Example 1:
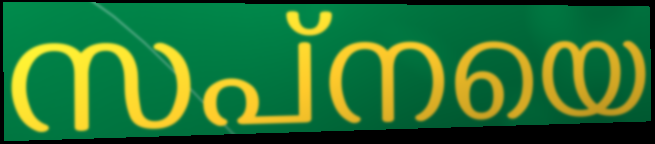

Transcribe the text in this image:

സപ്‌നയെ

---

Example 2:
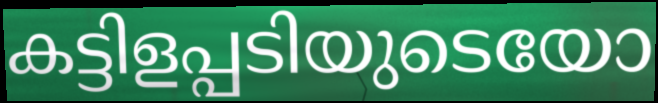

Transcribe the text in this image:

കട്ടിളപ്പടിയുടെയോ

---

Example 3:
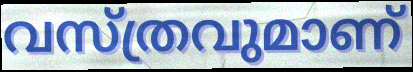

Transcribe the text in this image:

വസ്ത്രവുമാണ്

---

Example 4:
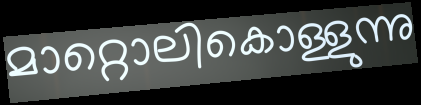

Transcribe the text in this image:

മാറ്റൊലികൊള്ളുന്നു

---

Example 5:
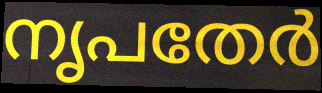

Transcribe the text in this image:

നൃപതേർ